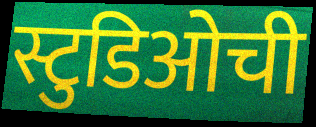
स्टुडिओची